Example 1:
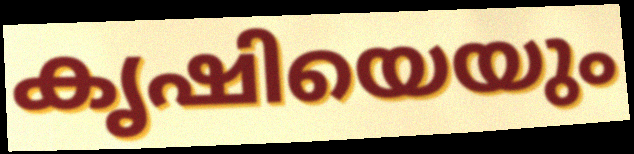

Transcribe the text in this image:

കൃഷിയെയും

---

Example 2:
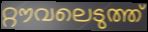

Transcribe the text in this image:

റ്റൗവലെടുത്ത്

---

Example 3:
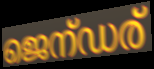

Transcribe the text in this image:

ജെന്ഡര്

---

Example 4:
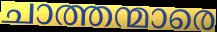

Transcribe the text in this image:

ചാത്തന്മാരെ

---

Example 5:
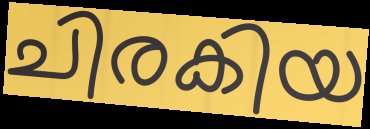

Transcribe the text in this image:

ചിരകിയ